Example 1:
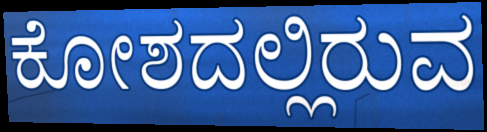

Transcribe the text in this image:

ಕೋಶದಲ್ಲಿರುವ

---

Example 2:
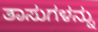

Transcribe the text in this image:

ತಾಸುಗಳನ್ನು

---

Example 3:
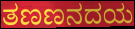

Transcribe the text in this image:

ತಣಣನದಯ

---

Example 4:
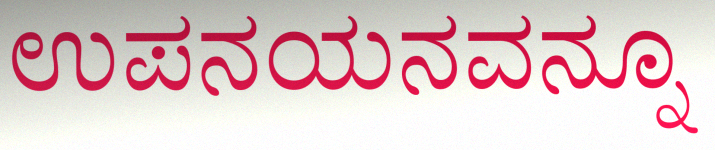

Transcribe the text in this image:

ಉಪನಯನವನ್ನೂ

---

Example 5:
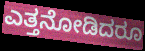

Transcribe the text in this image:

ಎತ್ತನೋಡಿದರೂ